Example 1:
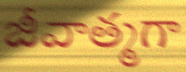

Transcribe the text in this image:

జీవాత్మగా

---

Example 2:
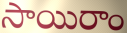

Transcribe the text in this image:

సాయిరాం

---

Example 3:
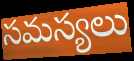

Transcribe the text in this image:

సమస్యలు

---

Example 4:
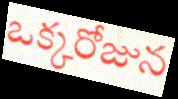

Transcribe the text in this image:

ఒక్కరోజున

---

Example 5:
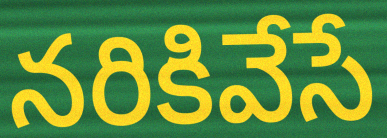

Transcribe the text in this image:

నరికివేసే